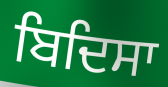
ਬਿਦਿਸਾ